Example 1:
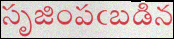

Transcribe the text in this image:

సృజింపఁబడిన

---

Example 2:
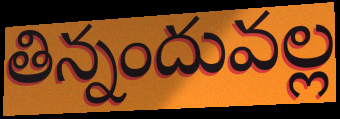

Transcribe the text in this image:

తిన్నందువల్ల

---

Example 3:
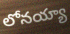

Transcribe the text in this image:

లోనయ్యా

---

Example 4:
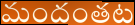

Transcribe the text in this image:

మందంతట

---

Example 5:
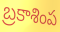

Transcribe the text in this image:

బ్రకాశింప